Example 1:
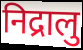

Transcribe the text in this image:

निद्रालु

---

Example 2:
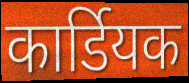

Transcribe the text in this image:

कार्डियक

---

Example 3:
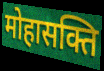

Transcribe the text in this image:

मोहासक्ति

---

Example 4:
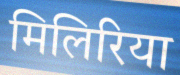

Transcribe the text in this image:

मिलिरिया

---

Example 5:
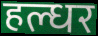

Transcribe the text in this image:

हल्धर